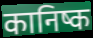
कानिष्क